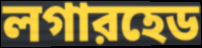
লগারহেড